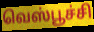
வெஸ்பூச்சி